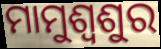
ମାମୁଶ୍ବଶୁର